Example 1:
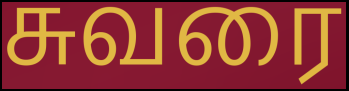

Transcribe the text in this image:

சுவரை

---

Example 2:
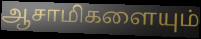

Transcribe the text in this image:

ஆசாமிகளையும்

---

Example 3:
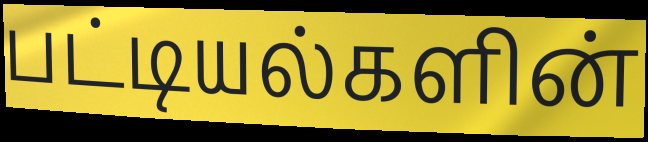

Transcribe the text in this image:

பட்டியல்களின்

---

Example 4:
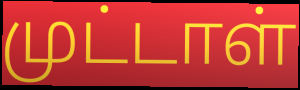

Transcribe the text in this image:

முட்டாள்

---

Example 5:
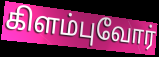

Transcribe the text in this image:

கிளம்புவோர்